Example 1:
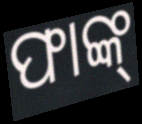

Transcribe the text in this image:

ଫାଙ୍କ୍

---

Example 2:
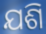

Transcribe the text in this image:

ଯଶି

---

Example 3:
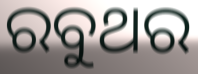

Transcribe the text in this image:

ରବୁଥର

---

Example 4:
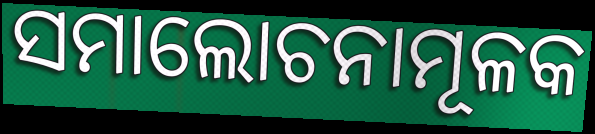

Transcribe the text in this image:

ସମାଲୋଚନାମୂଳକ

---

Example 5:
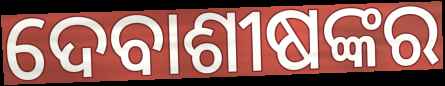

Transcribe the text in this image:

ଦେବାଶୀଷଙ୍କର